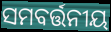
ସମବର୍ତ୍ତନୀୟ